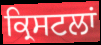
ਕ੍ਰਿਸਟਲਾਂ